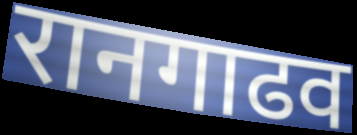
रानगाढव